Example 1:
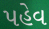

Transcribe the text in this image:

પહેવ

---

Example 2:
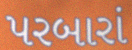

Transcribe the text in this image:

પરબારાં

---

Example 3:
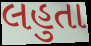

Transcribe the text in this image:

લહુતા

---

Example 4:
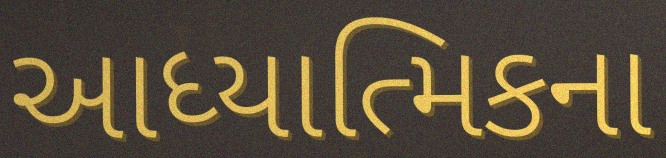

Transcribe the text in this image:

આધ્યાત્મિકના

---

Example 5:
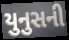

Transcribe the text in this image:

યુનુસની